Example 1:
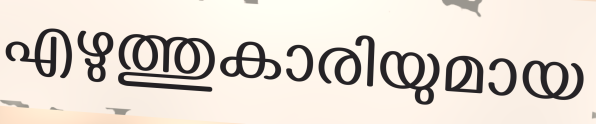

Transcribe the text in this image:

എഴുത്തുകാരിയുമായ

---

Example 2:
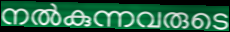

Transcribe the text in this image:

നൽകുന്നവരുടെ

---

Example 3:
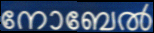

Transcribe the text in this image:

നോബേൽ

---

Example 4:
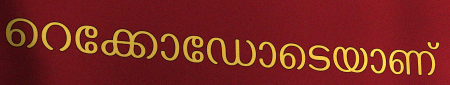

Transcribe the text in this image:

റെക്കോഡോടെയാണ്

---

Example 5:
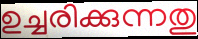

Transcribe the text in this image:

ഉച്ചരിക്കുന്നതു